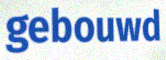
gebouwd